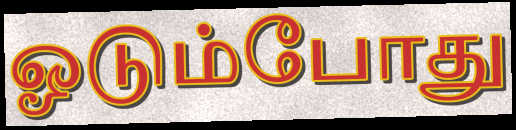
ஓடும்போது